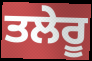
ਤਲੇਰੂ